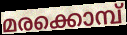
മരക്കൊമ്പ്